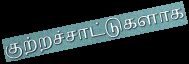
குற்றச்சாட்டுகளாக